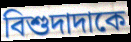
বিশুদাদাকে